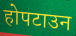
होपटाउन